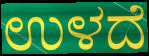
ಉಳದೆ